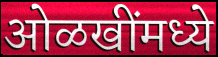
ओळखींमध्ये